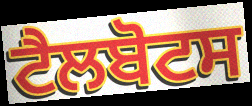
ਟੈਲਬੋਟਸ